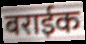
बराईक